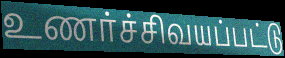
உணர்ச்சிவயப்பட்டு